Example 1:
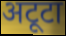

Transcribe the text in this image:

अटूटा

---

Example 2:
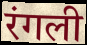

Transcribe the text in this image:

रंगली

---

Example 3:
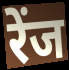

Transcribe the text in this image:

रेंज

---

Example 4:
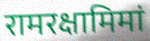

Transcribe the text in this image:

रामरक्षामिमां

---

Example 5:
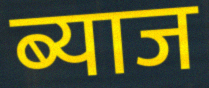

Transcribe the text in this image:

ब्याज